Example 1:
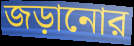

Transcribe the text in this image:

জড়ানোর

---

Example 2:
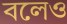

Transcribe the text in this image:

বলেও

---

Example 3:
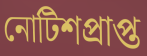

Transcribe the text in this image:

নোটিশপ্রাপ্ত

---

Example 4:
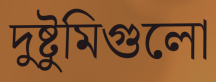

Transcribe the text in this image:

দুষ্টুমিগুলো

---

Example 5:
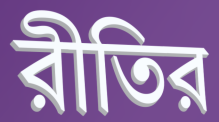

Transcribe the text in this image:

রীতির